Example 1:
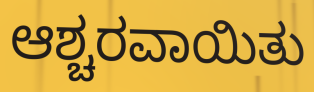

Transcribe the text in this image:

ಆಶ್ಚರವಾಯಿತು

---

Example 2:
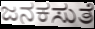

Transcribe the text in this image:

ಜನಕಸುತೆ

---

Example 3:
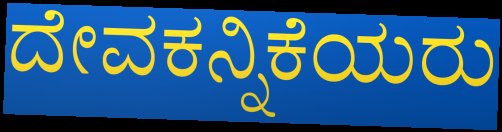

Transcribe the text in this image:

ದೇವಕನ್ನಿಕೆಯರು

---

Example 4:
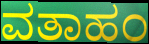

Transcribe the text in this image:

ವತಾಹಂ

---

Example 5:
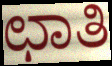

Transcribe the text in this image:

ಛಾತಿ